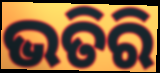
ଭତିରି